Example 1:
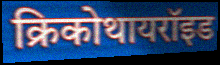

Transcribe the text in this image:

क्रिकोथायरॉइड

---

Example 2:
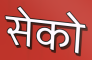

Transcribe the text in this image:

सेको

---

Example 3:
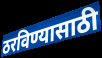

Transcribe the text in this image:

ठरविण्यासाठी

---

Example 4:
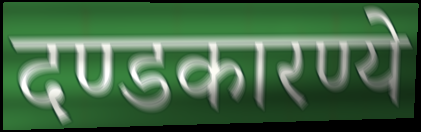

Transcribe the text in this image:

दण्डकारण्ये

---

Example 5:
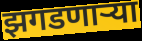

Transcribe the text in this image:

झगडणाऱ्या